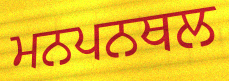
ਮਨਪਨਥਲ